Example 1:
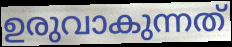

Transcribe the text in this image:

ഉരുവാകുന്നത്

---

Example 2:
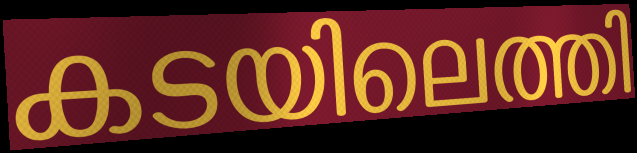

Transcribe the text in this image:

കടയിലെത്തി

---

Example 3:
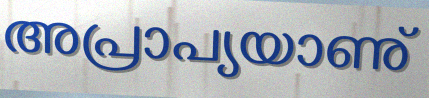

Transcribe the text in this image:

അപ്രാപ്യയാണു്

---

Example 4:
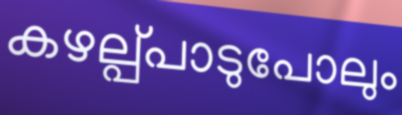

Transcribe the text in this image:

കഴല്പ്പാടുപോലും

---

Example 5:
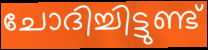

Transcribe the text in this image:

ചോദിച്ചിട്ടുണ്ട്